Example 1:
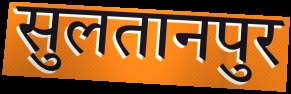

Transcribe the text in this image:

सुलतानपुर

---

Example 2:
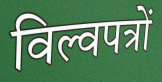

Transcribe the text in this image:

विल्वपत्रों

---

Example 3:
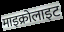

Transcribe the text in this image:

माइक्रोलाइट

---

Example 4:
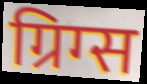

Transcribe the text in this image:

ग्रिग्स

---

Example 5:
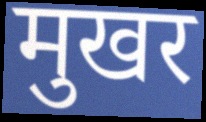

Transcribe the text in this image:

मुखर